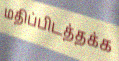
மதிப்பிடத்தக்க